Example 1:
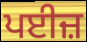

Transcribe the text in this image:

ਪਈਜ਼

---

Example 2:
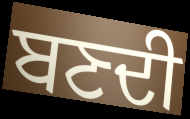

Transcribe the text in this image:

ਬਣਦੀ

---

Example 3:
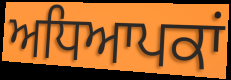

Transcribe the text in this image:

ਅਧਿਆਪਕਾਂ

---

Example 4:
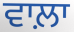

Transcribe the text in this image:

ਵਾਲ਼ਾ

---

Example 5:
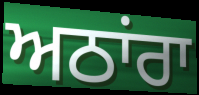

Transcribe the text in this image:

ਅਠਾਂਰਾ